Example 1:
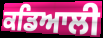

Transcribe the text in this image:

ਕਡਿਆਲੀ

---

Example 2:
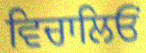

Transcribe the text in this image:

ਵਿਚਾਲਿਓਂ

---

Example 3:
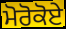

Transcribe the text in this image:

ਮੋਰੋਕੋਏ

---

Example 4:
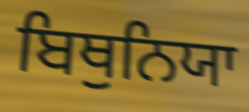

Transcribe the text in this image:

ਬਿਥੁਨਿਯਾ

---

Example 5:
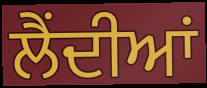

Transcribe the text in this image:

ਲੈਂਦੀਆਂ